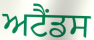
ਅਟੈਂਡਸ